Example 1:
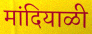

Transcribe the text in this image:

मांदियाळी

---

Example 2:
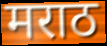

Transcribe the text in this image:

मराठ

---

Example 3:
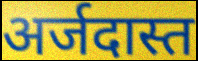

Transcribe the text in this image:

अर्जदास्त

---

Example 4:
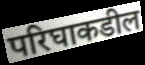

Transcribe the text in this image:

परिघाकडील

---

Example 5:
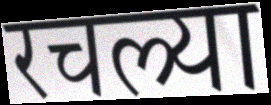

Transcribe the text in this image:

रचल्या